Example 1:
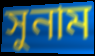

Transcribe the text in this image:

সুনাম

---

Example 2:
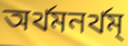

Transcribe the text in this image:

অর্থমনর্থম্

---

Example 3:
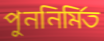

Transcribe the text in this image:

পুননির্মিত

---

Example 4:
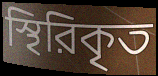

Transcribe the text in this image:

স্থিরিকৃত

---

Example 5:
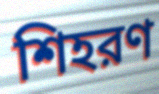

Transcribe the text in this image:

শিহরণ